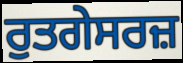
ਰੁਤਗੇਸਰਜ਼